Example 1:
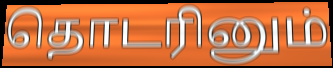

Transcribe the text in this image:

தொடரினும்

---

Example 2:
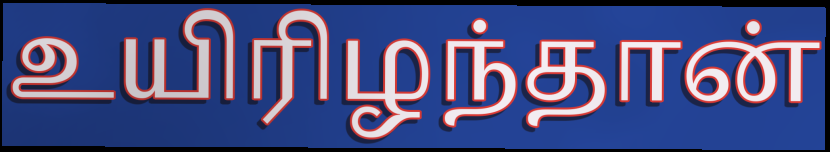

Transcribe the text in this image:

உயிரிழந்தான்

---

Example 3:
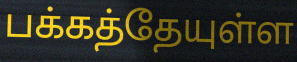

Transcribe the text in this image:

பக்கத்தேயுள்ள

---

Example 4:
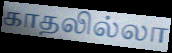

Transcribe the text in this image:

காதலில்லா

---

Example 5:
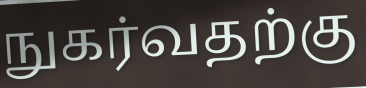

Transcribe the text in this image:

நுகர்வதற்கு